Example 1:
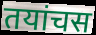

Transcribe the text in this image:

तयांचस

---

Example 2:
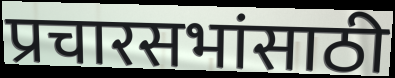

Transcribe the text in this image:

प्रचारसभांसाठी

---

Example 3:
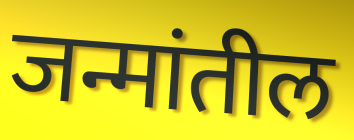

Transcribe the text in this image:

जन्मांतील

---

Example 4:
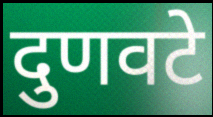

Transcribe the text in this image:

दुणवटे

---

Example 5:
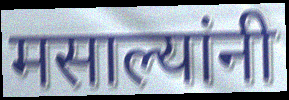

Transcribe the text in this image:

मसाल्यांनी